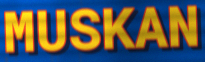
MUSKAN